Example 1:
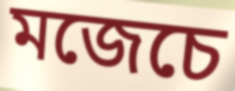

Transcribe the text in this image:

মজেচে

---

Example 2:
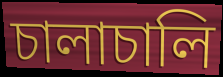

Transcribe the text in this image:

চালাচালি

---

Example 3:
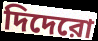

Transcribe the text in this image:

দিদেরো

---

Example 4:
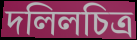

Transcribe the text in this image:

দলিলচিত্র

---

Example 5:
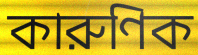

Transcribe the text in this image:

কারুণিক